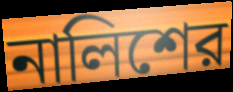
নালিশের